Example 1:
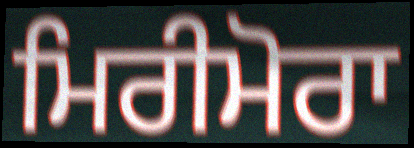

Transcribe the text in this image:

ਮਿਰੀਮੋਰਾ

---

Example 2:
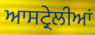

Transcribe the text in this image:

ਆਸਟ੍ਰੇਲੀਆਂ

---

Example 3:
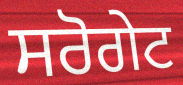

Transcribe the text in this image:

ਸਰੋਗੇਟ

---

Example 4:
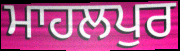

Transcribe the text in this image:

ਮਾਹਲਪੁਰ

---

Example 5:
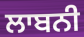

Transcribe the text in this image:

ਲਾਬਨੀ